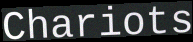
Chariots